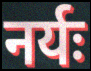
नर्यः